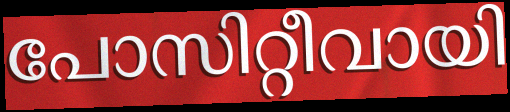
പോസിറ്റീവായി